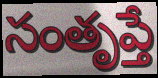
సంతృప్తే